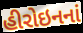
હીરોઇનનાં